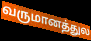
வருமானத்துல